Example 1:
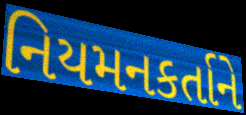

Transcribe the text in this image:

નિયમનકર્તાને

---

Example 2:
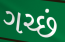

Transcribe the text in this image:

ગચ્છં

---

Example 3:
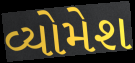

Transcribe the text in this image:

વ્યોમેશ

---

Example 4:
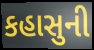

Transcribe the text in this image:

કહાસુની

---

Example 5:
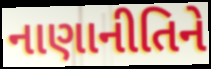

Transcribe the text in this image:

નાણાનીતિને